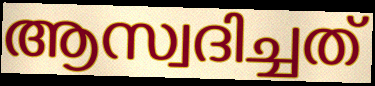
ആസ്വദിച്ചത്